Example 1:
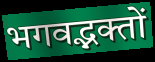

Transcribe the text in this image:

भगवद्भक्तों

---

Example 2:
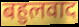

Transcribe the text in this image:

बहुलवाद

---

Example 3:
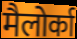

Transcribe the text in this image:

मैलोर्का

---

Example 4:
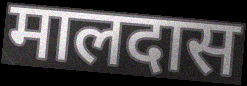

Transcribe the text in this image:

मालदास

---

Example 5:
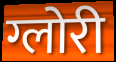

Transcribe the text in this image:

ग्लोरी